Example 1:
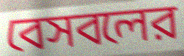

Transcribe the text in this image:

বেসবলের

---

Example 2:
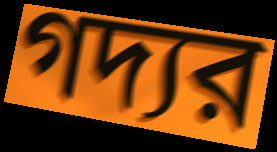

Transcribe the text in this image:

গদ্যর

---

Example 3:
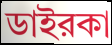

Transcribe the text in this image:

ডাইরকা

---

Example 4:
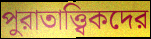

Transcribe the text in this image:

পুরাতাত্ত্বিকদের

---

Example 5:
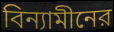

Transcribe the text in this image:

বিন্যামীনের